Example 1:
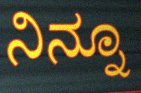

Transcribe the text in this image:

ನಿನ್ನೂ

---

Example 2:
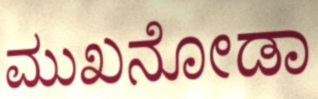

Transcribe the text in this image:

ಮುಖನೋಡಾ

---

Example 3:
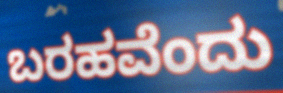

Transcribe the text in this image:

ಬರಹವೆಂದು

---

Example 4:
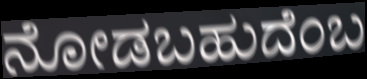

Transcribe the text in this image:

ನೋಡಬಹುದೆಂಬ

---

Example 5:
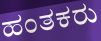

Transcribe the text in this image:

ಹಂತಕರು